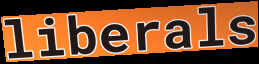
liberals